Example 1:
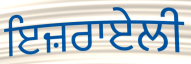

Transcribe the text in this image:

ਇਜ਼ਰਾਏਲੀ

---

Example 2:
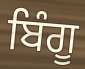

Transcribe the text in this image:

ਬਿੰਗੂ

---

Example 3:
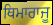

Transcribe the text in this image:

ਥਿਮਾਰਾਜੂ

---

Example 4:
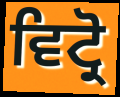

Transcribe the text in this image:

ਵਿਟ੍ਰੋ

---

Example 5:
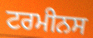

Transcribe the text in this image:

ਟਰਮੀਨਸ